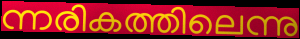
ന്നരികത്തിലെന്നു